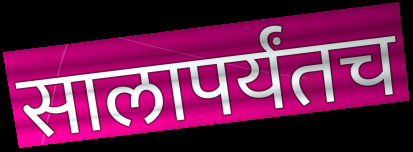
सालापर्यंतच